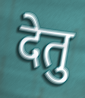
देतु